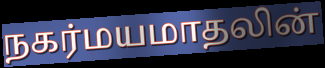
நகர்மயமாதலின்